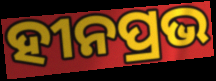
ହୀନପ୍ରଭ